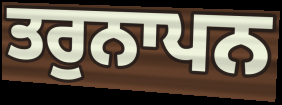
ਤਰੁਨਾਪਨ